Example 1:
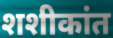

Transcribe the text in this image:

शशीकांत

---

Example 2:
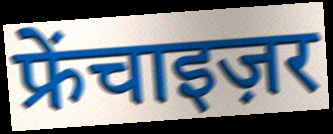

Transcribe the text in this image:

फ्रेंचाइज़र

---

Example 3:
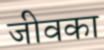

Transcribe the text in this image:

जीवका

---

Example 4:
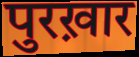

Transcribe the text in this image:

पुरख़ार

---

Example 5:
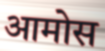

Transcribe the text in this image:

आमोस